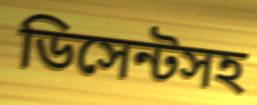
ডিসেন্টসহ